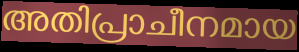
അതിപ്രാചീനമായ